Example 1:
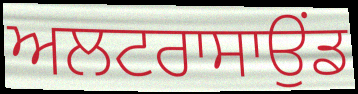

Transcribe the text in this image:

ਅਲਟਰਾਸਾਉਂਡ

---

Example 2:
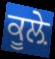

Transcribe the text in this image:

ਕੂਲ਼ੇ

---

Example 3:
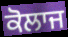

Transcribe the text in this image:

ਕੋਲਾਜ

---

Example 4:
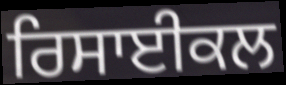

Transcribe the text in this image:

ਰਿਸਾਈਕਲ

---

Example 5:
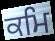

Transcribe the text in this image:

ਕਮਿ